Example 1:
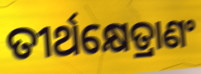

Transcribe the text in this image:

ତୀର୍ଥକ୍ଷେତ୍ରାଣଂ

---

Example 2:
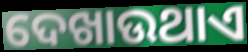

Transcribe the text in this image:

ଦେଖାଉଥାଏ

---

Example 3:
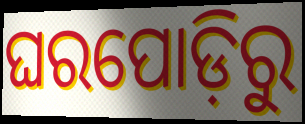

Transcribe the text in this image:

ଘରପୋଡ଼ିରୁ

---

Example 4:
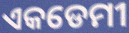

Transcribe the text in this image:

ଏକଡେମୀ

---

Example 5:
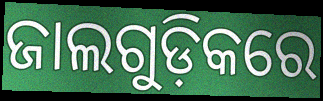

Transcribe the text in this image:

ଜାଲଗୁଡ଼ିକରେ